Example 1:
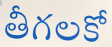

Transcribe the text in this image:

తీగలకో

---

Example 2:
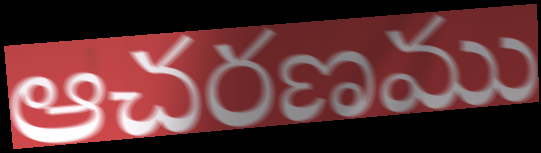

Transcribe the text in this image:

ఆచరణము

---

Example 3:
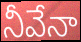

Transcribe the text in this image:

నీవేనా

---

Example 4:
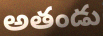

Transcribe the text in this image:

అతండు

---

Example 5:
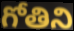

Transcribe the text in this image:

గోతిని